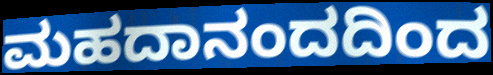
ಮಹದಾನಂದದಿಂದ